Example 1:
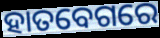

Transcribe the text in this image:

ହାତବେଗରେ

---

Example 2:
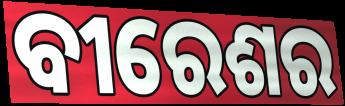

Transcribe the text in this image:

ବୀରେଶର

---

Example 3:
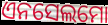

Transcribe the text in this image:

ଏନସେଲମୋ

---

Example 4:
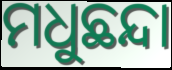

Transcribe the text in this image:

ମଧୁଛନ୍ଦା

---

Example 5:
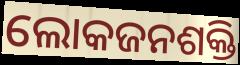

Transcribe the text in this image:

ଲୋକଜନଶକ୍ତି